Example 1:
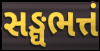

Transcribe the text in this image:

સઙ્ઘભત્તં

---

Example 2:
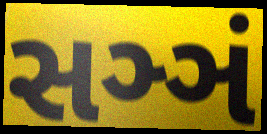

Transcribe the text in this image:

સઞ્ઞં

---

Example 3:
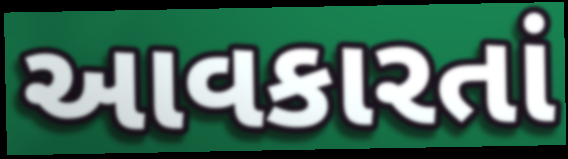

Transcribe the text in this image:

આવકારતાં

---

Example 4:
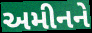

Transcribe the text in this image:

અમીનને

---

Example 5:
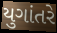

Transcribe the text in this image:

યુગાંતરે